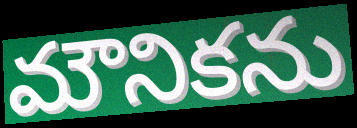
మౌనికను